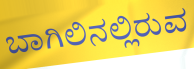
ಬಾಗಿಲಿನಲ್ಲಿರುವ